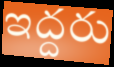
ఇద్దరు